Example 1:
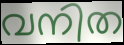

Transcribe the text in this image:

വനിത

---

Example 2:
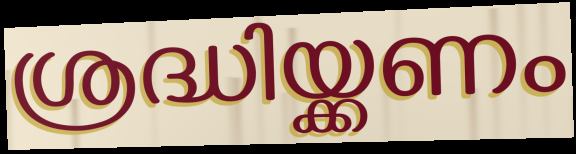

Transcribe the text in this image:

ശ്രദ്ധിയ്ക്കണം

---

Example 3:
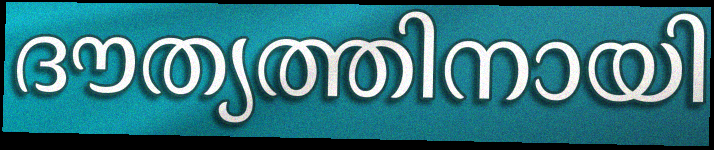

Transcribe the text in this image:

ദൗത്യത്തിനായി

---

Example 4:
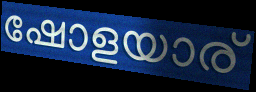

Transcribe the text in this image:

ഷോളയാര്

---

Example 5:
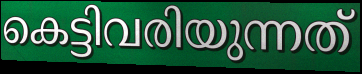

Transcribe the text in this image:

കെട്ടിവരിയുന്നത്